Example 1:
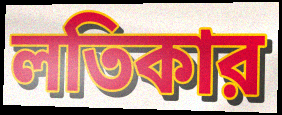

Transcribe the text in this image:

লতিকার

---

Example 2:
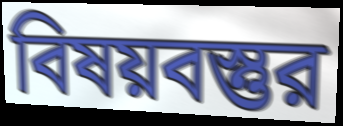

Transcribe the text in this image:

বিষয়বস্তুর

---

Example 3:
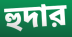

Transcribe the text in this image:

হুদার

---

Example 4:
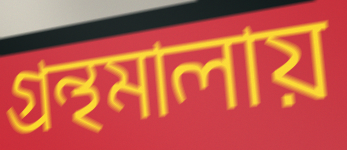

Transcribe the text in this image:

গ্রন্থমালায়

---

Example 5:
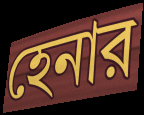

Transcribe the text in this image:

হেনার